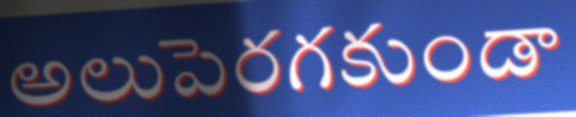
అలుపెరగకుండా